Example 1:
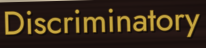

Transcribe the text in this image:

Discriminatory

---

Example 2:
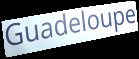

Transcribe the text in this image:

Guadeloupe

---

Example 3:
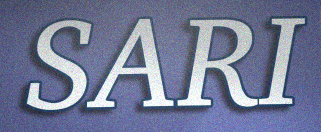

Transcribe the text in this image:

SARI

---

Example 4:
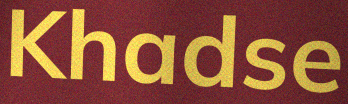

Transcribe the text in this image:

Khadse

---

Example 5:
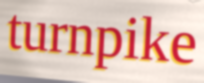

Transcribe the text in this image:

turnpike